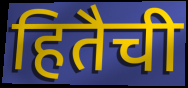
हितैची